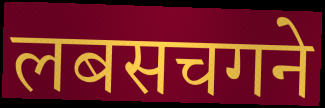
लबसचगने